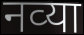
नव्‍या